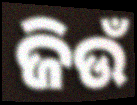
ଜିଉଁ